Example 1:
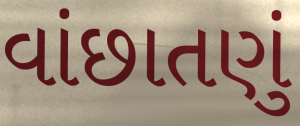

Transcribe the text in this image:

વાંછાતણું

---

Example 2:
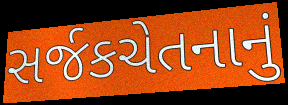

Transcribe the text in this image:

સર્જકચેતનાનું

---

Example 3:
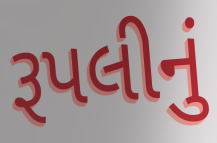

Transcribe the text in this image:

રૂપલીનું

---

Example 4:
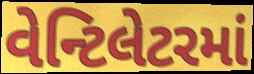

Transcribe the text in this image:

વેન્ટિલેટરમાં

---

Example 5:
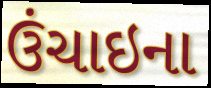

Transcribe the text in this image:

ઉંચાઇના